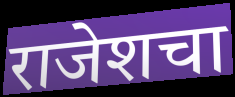
राजेशचा